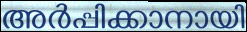
അർപ്പിക്കാനായി